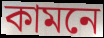
কামনে